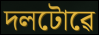
দলটোৱে